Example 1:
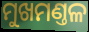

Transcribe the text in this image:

ମୁଖମଣ୍ତଳ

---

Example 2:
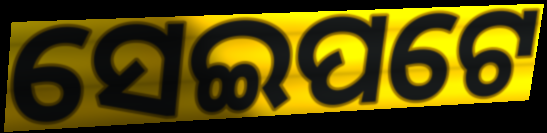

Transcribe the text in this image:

ସେଇପଟେ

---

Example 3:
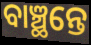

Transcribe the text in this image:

ବାଞ୍ଛନ୍ତେ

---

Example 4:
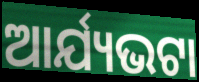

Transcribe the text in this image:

ଆର୍ଯ୍ୟଭଟା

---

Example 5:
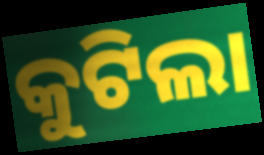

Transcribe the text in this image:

କୁଟିଲା